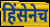
हिंसेनेच